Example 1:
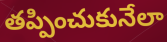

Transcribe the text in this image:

తప్పించుకునేలా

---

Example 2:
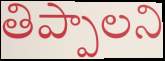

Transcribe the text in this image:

తిప్పాలని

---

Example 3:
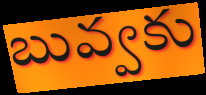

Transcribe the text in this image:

బువ్వకు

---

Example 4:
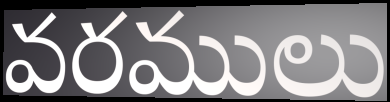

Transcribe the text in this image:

వరములు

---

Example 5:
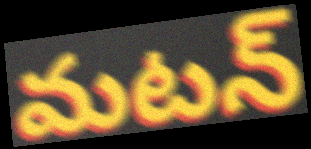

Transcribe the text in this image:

మటన్